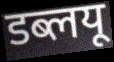
डब्लयू